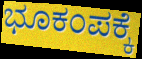
ಭೂಕಂಪಕ್ಕೆ